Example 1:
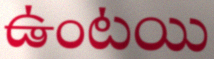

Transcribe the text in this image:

ఉంటయి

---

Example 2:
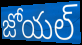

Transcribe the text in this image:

జోయల్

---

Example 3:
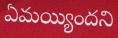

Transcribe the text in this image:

ఏమయ్యిందని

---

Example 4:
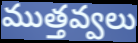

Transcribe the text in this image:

ముత్తవ్వలు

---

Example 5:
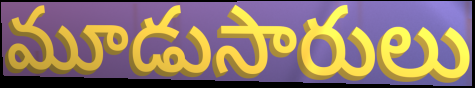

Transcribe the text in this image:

మూడుసారులు